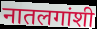
नातलगांशी